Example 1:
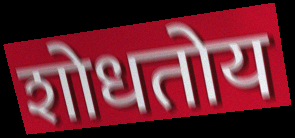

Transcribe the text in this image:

शोधतोय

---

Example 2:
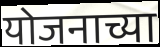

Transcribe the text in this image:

योजनाच्या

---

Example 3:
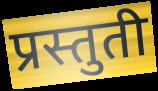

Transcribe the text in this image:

प्रस्तुती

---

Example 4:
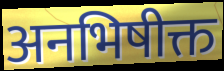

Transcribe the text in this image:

अनभिषीक्त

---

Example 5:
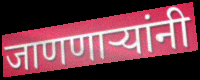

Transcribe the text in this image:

जाणणाऱ्यांनी